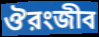
ঔরংজীব